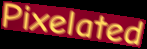
Pixelated